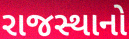
રાજસ્થાનો